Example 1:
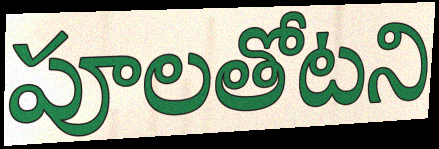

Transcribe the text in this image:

పూలతోటని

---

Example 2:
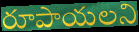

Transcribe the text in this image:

రూపాయలని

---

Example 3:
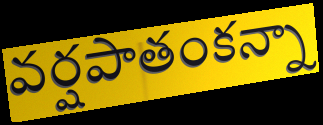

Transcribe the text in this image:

వర్షపాతంకన్నా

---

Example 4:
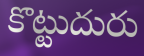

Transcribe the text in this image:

కొట్టుదురు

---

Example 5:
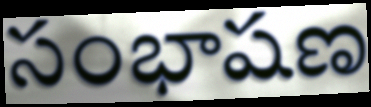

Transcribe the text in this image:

సంభాషణ